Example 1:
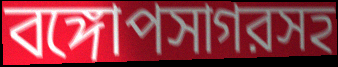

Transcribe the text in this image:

বঙ্গোপসাগরসহ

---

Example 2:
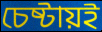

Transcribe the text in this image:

চেষ্টায়ই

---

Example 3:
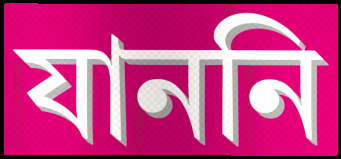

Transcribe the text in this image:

যাননি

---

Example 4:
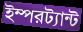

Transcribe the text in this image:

ইম্পরট্যান্ট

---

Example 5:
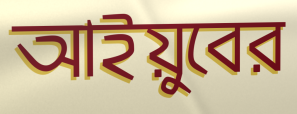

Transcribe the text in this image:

আইয়ুবের